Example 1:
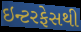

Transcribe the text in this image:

ઇન્ટરફેસથી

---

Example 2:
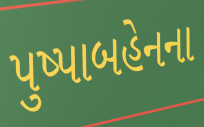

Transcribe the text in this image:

પુષ્પાબહેનના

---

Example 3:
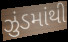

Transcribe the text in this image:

ઝુંડમાંથી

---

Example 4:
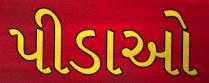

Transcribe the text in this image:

પીડાઓ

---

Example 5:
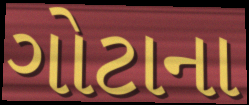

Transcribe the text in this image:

ગોટાના